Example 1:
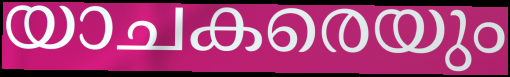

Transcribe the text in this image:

യാചകരെയും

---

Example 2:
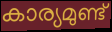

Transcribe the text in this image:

കാര്യമുണ്ട്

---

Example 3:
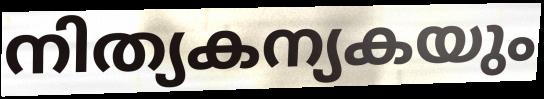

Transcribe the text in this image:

നിത്യകന്യകയും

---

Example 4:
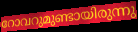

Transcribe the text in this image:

റോവറുമുണ്ടായിരുന്നു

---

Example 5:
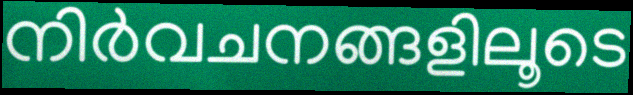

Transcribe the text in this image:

നിർവചനങ്ങളിലൂടെ